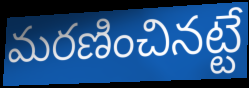
మరణించినట్టే